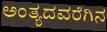
ಅಂತ್ಯದವರೆಗಿನ